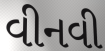
વીનવી